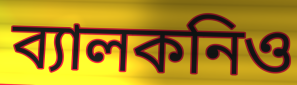
ব্যালকনিও